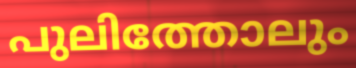
പുലിത്തോലും